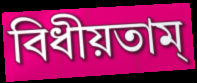
বিধীয়তাম্